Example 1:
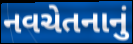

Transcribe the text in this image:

નવચેતનાનું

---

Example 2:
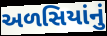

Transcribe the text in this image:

અળસિયાંનું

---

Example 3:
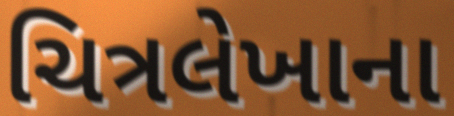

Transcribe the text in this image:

ચિત્રલેખાના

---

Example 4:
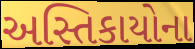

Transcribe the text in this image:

અસ્તિકાયોના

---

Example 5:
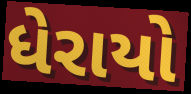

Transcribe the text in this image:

ધેરાયો